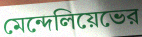
মেন্দেলিয়েভের